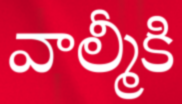
వాల్మీకి